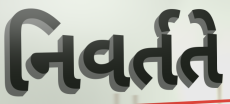
નિવર્તતે